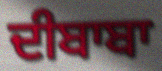
ਦੀਬਾਬਾ